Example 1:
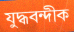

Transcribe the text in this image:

যুদ্ধবন্দীক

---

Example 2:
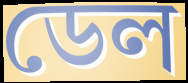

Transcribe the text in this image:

ডেল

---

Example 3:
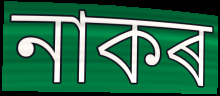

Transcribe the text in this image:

নাকৰ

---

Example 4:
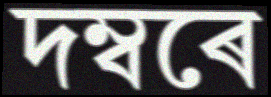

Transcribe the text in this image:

দম্বৰে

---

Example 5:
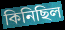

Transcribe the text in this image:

কিনিছিল